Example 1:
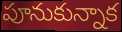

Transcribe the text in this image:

పూనుకున్నాక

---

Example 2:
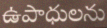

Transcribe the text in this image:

ఉపాధులను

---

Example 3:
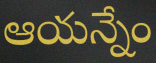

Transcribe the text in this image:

ఆయన్నేం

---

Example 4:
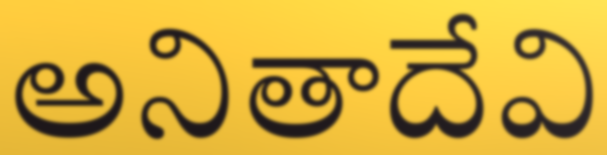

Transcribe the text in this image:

అనితాదేవి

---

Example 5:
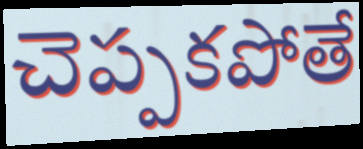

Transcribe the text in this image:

చెప్పకపోతే